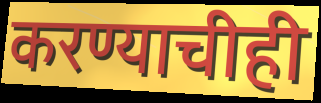
करण्याचीही